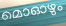
മൊഓഴും